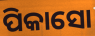
ପିକାସୋ